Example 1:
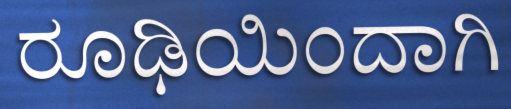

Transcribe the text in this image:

ರೂಢಿಯಿಂದಾಗಿ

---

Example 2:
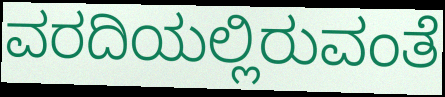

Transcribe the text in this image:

ವರದಿಯಲ್ಲಿರುವಂತೆ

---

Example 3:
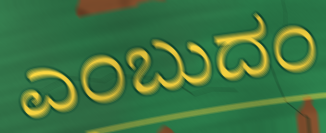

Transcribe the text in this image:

ಎಂಬುದಂ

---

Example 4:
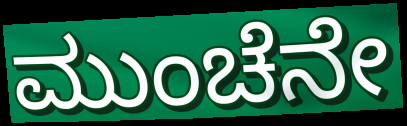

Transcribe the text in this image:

ಮುಂಚೆನೇ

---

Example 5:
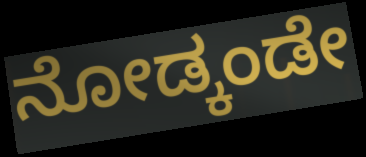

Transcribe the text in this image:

ನೋಡ್ಕಂಡೇ